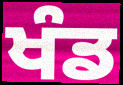
ਖੰਡ